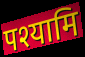
पश्यामि